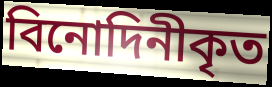
বিনোদিনীকৃত